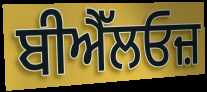
ਬੀਐੱਲਓਜ਼